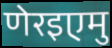
णेरइएमु